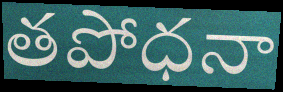
తపోధనా